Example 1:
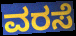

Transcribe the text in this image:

ವರಸೆ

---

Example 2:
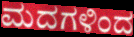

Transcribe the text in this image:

ಮದಗಳಿಂದ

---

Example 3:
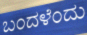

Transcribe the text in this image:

ಬಂದಳೆಂದು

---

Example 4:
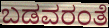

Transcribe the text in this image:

ಬಡವರಂತೆ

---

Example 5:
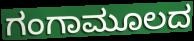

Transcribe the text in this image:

ಗಂಗಾಮೂಲದ